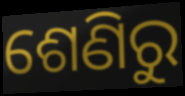
ଶେଣିରୁ